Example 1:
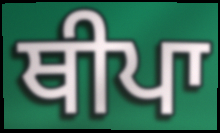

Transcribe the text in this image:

ਥੀਪਾ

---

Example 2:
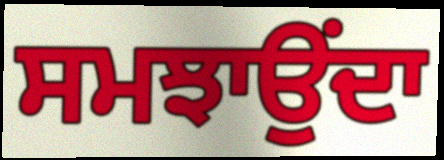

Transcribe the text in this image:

ਸਮਝਾਉਂਦਾ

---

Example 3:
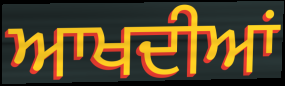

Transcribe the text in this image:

ਆਖਦੀਆਂ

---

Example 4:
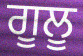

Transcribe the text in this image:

ਗੂਲੂ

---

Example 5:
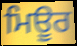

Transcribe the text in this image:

ਮਿਊਰ